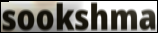
sookshma